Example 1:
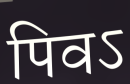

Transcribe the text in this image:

पिवऽ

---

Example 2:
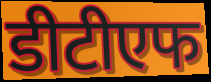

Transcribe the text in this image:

डीटीएफ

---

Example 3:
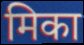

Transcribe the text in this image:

मिका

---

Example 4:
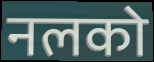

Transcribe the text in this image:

नलको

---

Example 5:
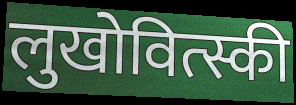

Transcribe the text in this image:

लुखोवित्स्की